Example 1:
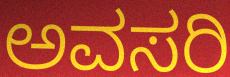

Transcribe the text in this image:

ಅವಸರಿ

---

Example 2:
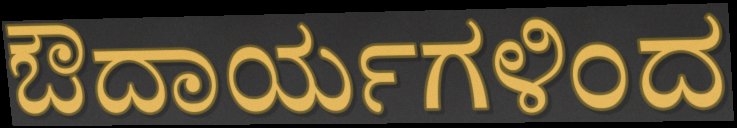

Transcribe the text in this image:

ಔದಾರ್ಯಗಳಿಂದ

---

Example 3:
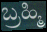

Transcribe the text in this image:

ಬ್ರಹ್ಮಿ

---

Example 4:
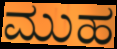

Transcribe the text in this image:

ಮುಹ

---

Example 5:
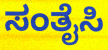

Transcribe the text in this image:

ಸಂತೈಸಿ